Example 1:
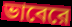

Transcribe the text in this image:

ভাবেরে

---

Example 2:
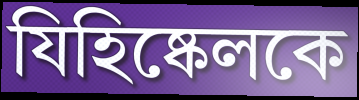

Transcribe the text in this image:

যিহিষ্কেলকে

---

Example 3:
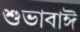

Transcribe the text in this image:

শুভাবাঈ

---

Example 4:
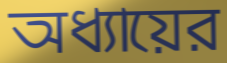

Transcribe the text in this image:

অধ্যায়ের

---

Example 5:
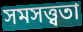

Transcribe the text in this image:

সমসত্ত্বতা